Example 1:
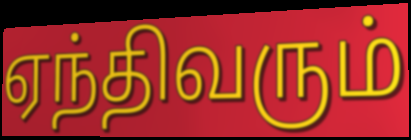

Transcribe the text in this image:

ஏந்திவரும்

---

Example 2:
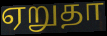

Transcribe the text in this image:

ஏறுதா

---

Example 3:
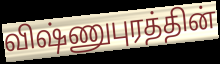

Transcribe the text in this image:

விஷ்ணுபுரத்தின்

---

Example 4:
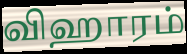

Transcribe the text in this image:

விஹாரம்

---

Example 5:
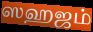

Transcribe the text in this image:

ஸஹஜம்